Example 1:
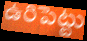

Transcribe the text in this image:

ఉరిపెట్టు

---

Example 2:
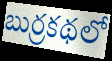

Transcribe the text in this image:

బుర్రకథలో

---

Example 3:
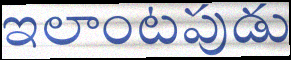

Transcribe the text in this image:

ఇలాంటపుడు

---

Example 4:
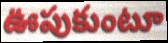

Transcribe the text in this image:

ఊపుకుంటూ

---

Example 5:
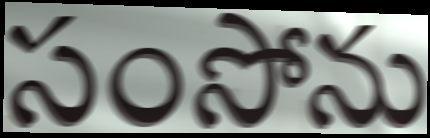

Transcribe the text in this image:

సంసోను